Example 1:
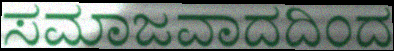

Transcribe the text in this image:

ಸಮಾಜವಾದದಿಂದ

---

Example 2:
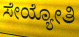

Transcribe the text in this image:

ಸೇಯ್ಯೋತಿ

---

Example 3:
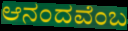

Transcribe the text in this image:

ಆನಂದವೆಂಬ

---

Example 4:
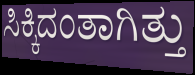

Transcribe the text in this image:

ಸಿಕ್ಕಿದಂತಾಗಿತ್ತು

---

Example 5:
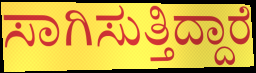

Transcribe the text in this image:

ಸಾಗಿಸುತ್ತಿದ್ದಾರೆ